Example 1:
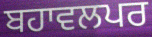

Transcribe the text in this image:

ਬਹਾਵਲਪਰ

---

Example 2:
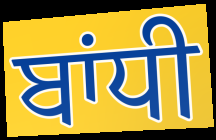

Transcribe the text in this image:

ਬਾਂਧੀ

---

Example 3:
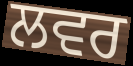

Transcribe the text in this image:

ਲਵਰ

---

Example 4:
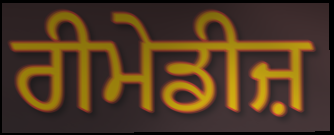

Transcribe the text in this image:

ਰੀਮੇਡੀਜ਼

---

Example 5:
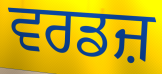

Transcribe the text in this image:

ਵਰਡਜ਼